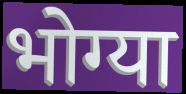
भोग्या